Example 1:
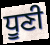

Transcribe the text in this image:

ਧੂਣੀ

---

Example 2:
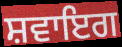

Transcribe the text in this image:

ਸ਼ਵਾਇਗ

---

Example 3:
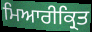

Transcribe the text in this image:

ਮਿਆਰੀਕ੍ਰਿਤ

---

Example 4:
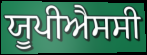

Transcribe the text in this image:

ਯੂਪੀਐਸਸੀ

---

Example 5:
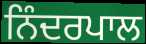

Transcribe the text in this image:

ਨਿੰਦਰਪਾਲ